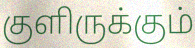
குளிருக்கும்